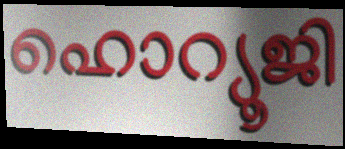
ഹൊറ്യൂജി